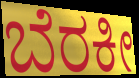
ಬೆರಕೀ